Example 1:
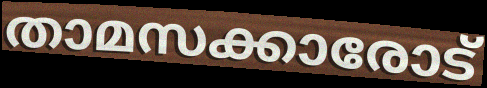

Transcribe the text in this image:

താമസക്കാരോട്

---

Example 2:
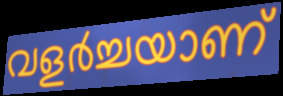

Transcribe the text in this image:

വളർച്ചയാണ്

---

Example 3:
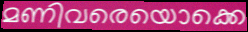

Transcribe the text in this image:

മണിവരെയൊക്കെ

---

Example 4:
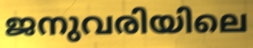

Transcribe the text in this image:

ജനുവരിയിലെ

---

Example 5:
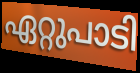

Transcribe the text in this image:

ഏറ്റുപാടി